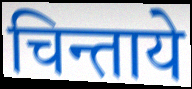
चिन्ताये